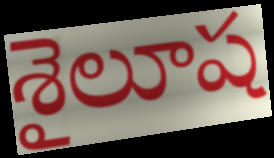
శైలూష